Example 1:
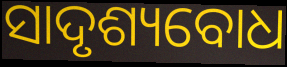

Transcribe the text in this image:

ସାଦୃଶ୍ୟବୋଧ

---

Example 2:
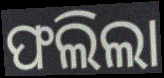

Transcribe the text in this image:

ଫଲିଲା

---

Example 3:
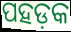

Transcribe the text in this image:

ପହଡ଼କ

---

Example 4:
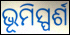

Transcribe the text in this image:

ଭୂମିସ୍ପର୍ଶ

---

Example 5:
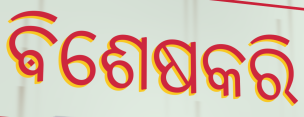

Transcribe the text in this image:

ଵିଶେଷକରି